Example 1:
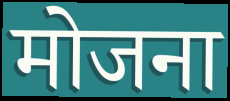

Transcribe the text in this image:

मोजना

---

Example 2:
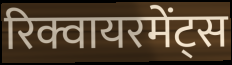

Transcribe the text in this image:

रिक्वायरमेंट्स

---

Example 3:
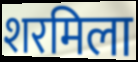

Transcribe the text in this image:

शरमिला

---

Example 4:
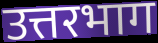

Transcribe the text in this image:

उत्तरभाग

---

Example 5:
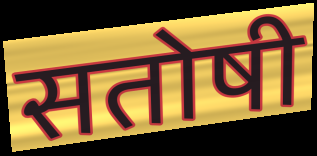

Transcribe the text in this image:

सतोषी